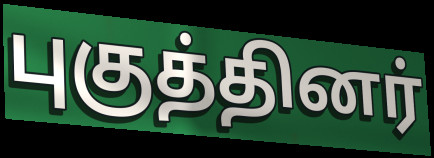
புகுத்தினர்